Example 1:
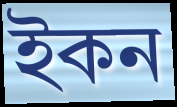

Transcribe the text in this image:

ইকন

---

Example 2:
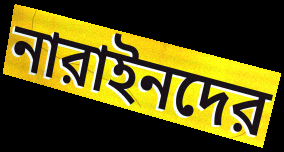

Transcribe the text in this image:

নারাইনদের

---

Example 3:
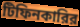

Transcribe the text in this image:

টিফিনকারির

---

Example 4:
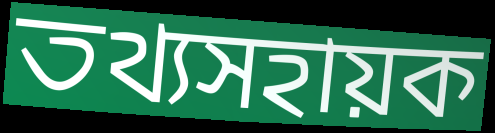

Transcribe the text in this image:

তথ্যসহায়ক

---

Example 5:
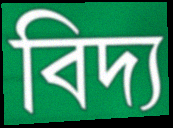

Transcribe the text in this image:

বিদ্য